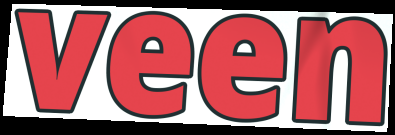
veen